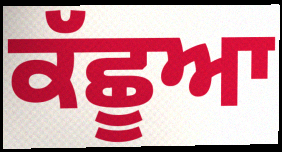
ਕੱਛੂਆ